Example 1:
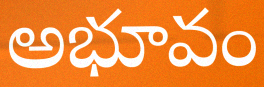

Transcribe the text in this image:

అభూవం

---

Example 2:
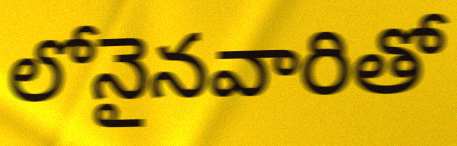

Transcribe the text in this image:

లోనైనవారితో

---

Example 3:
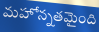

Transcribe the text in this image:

మహోన్నతమైంది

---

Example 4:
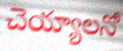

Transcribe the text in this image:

చెయ్యాలనో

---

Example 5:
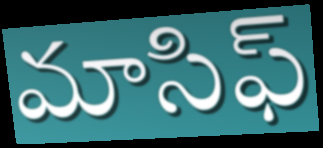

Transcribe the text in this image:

మాసిఫ్